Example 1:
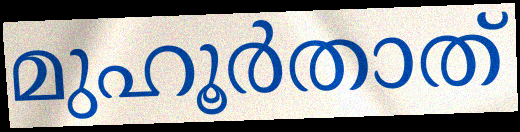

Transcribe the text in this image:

മുഹൂർതാത്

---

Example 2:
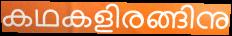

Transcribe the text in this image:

കഥകളിരങ്ങിനു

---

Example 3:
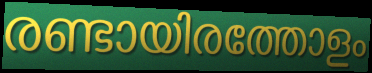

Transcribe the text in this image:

രണ്ടായിരത്തോളം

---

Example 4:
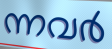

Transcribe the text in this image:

ന്നവർ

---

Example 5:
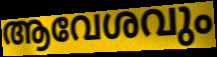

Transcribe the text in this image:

ആവേശവും